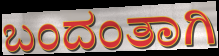
ಬಂದಂತಾಗಿ